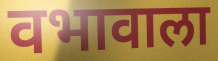
वभावाला